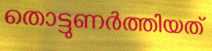
തൊട്ടുണർത്തിയത്